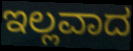
ಇಲ್ಲವಾದ